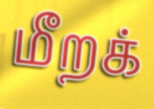
மீறக்